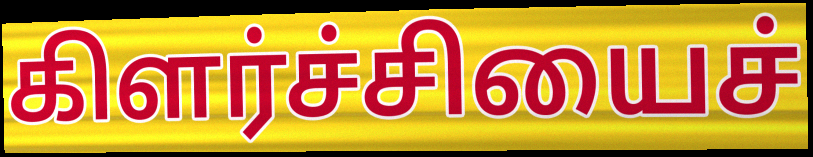
கிளர்ச்சியைச்